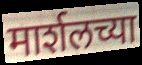
मार्शलच्या